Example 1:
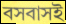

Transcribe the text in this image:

বসবাসই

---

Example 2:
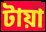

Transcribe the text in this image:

টায়া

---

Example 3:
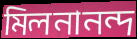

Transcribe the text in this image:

মিলনানন্দ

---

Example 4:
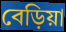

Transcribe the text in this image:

বেড়িয়া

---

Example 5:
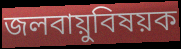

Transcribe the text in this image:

জলবায়ুবিষয়ক